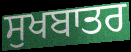
ਸੁਖਬਾਤਰ